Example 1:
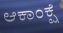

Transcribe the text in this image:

ಆಕಾಂಕ್ಷೆ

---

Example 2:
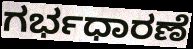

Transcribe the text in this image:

ಗರ್ಭಧಾರಣೆ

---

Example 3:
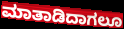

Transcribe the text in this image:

ಮಾತಾಡಿದಾಗಲೂ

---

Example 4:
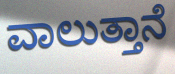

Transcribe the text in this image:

ವಾಲುತ್ತಾನೆ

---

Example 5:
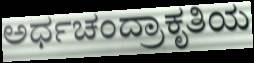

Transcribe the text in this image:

ಅರ್ಧಚಂದ್ರಾಕೃತಿಯ